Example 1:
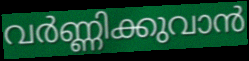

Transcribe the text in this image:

വർണ്ണിക്കുവാൻ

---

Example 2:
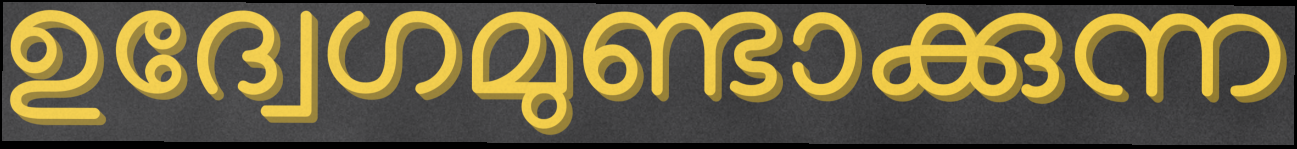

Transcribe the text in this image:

ഉദ്വേഗമുണ്ടാക്കുന്ന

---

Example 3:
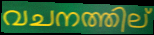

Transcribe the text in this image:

വചനത്തില്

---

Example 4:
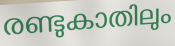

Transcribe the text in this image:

രണ്ടുകാതിലും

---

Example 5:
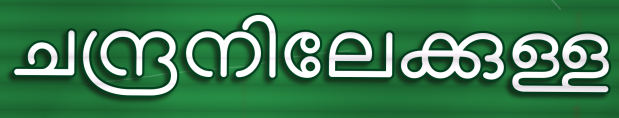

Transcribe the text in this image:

ചന്ദ്രനിലേക്കുള്ള